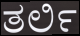
ತರ್ಲಿ